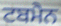
ਟਬਮੈਨ